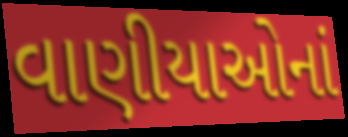
વાણીયાઓનાં